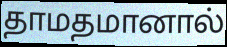
தாமதமானால்